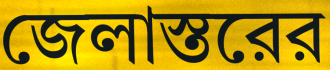
জেলাস্তরের